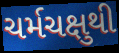
ચર્મચક્ષુથી